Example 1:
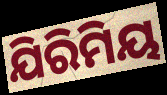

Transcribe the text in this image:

ଯିରିମିୟ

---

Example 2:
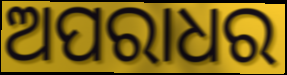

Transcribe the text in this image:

ଅପରାଧର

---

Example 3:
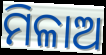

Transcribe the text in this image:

ମିଳାଅ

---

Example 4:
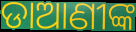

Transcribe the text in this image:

ଡାଆଣୀଙ୍କ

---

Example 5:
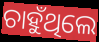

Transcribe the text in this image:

ଚାହୁଁଥିଲେ